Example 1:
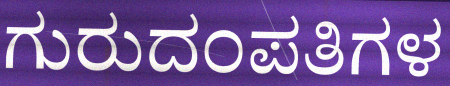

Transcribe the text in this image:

ಗುರುದಂಪತಿಗಳ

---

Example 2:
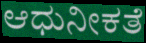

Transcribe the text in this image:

ಆಧುನೀಕತೆ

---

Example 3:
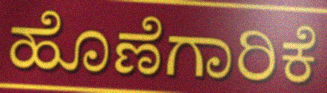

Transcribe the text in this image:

ಹೊಣೆಗಾರಿಕೆ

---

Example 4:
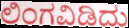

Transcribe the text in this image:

ಲಿಂಗವಿಡಿದು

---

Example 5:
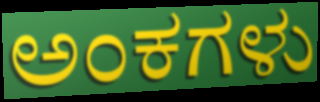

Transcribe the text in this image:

ಅಂಕಗಳು